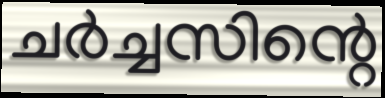
ചർച്ചസിന്റെ